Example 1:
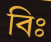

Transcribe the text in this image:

বিঃ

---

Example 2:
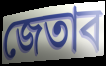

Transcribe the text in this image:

জেতাব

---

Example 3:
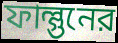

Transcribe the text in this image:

ফাল্গুনের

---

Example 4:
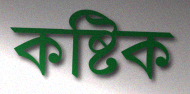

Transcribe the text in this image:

কষ্টিক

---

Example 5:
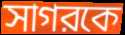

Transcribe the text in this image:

সাগরকে